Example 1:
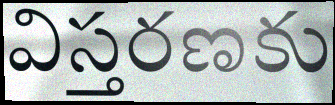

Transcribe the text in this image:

విస్తరణకు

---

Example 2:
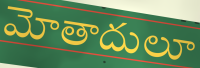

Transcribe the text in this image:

మోతాదులూ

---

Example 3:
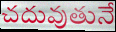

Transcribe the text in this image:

చదువుతునే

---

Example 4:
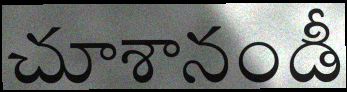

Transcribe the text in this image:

చూశానండీ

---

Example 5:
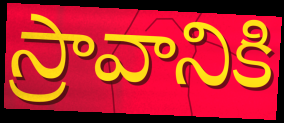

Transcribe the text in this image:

స్రావానికి